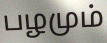
பழமும்